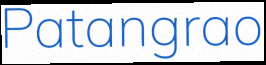
Patangrao